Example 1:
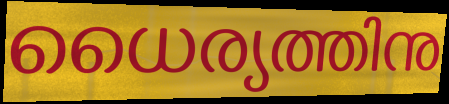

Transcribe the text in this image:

ധൈര്യത്തിനു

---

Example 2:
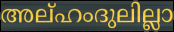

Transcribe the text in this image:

അല്ഹംദുലില്ലാ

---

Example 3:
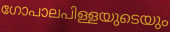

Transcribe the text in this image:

ഗോപാലപിള്ളയുടെയും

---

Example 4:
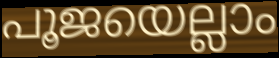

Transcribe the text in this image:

പൂജയെല്ലാം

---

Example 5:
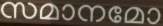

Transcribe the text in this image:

സമാനമോ